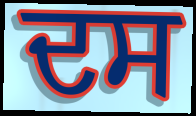
ਦਸ